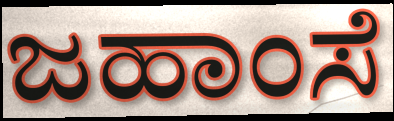
ಜಹಾಂಸೆ